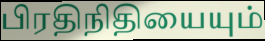
பிரதிநிதியையும்